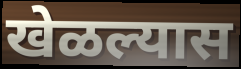
खेळल्यास